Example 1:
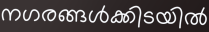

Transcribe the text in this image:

നഗരങ്ങൾക്കിടയിൽ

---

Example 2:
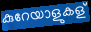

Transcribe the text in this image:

കുറേയാളുകള്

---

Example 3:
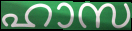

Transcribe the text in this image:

ഹാസ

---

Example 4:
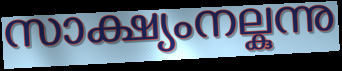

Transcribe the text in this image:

സാക്ഷ്യംനല്കുന്നു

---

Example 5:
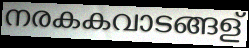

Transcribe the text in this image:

നരകകവാടങ്ങള്